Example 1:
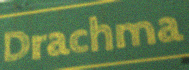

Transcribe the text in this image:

Drachma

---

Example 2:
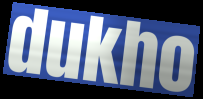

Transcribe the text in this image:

dukho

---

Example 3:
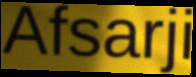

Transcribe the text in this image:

Afsarji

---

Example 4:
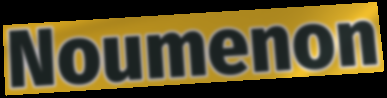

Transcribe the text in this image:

Noumenon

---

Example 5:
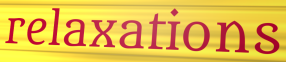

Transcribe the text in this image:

relaxations